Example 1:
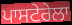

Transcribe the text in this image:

ਪਾਸਟੇਰੇਲਾ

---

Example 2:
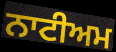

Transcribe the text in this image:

ਨਾਟੀਅਮ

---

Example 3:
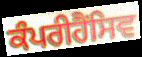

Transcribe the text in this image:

ਕੰਪਰੀਹੈਂਸਿਵ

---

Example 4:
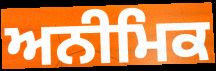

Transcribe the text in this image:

ਅਨੀਮਿਕ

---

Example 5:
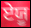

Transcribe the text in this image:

ਏਯੂ